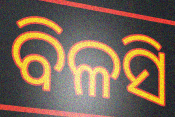
ବିଳସି